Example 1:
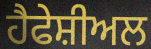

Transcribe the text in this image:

ਹੈਫੇਸ਼ੀਅਲ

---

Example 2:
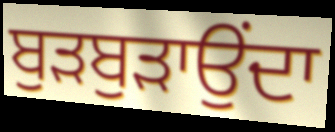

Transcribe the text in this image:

ਬੁੜਬੁੜਾਉਂਦਾ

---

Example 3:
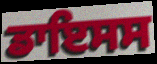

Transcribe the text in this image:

ਡਾਇਸਸ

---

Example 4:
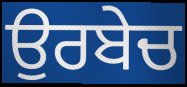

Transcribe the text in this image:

ਉਰਬੇਚ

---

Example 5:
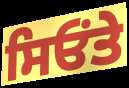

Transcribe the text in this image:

ਸਿਓਂਤੇ